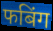
फबिंग